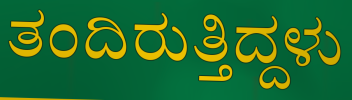
ತಂದಿರುತ್ತಿದ್ದಳು